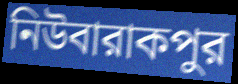
নিউবারাকপুর